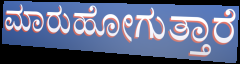
ಮಾರುಹೋಗುತ್ತಾರೆ